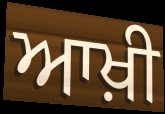
ਆਖ਼ੀ